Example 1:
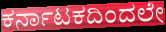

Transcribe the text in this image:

ಕರ್ನಾಟಕದಿಂದಲೇ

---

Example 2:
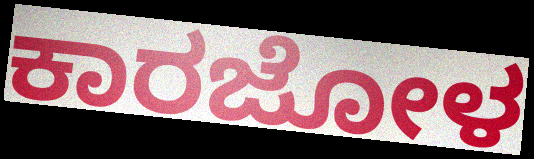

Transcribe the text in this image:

ಕಾರಜೋಳ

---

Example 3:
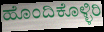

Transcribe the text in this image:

ಹೊಂದಿಕೊಳ್ಳಿರಿ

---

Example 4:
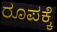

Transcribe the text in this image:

ರೂಪಕ್ಕೆ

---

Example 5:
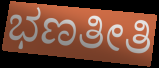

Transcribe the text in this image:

ಭಣತೀತಿ